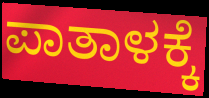
ಪಾತಾಳಕ್ಕೆ